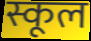
स्‍कूल